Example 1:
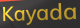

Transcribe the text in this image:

Kayada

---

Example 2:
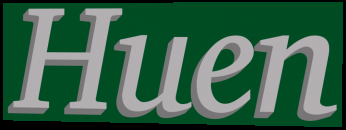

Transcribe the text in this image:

Huen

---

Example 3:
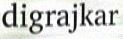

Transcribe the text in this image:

digrajkar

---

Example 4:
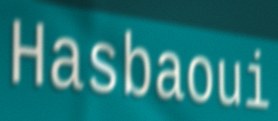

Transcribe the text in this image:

Hasbaoui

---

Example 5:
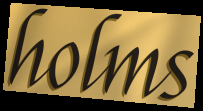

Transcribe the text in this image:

holms